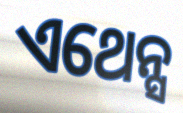
ଏଥେନ୍ସ